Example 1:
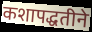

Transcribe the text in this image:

कशापद्धतीने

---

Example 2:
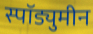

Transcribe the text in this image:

स्पॉड्युमीन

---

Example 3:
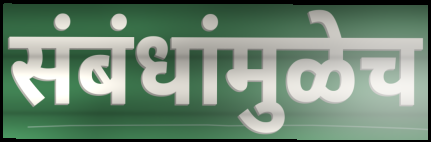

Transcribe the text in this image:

संबंधांमुळेच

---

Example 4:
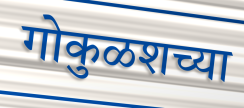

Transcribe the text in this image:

गोकुळशच्या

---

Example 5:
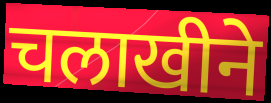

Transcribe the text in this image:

चलाखीने